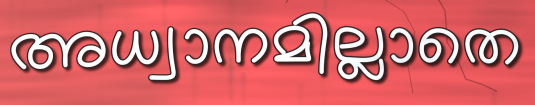
അധ്വാനമില്ലാതെ